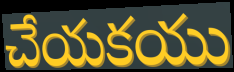
చేయకయు